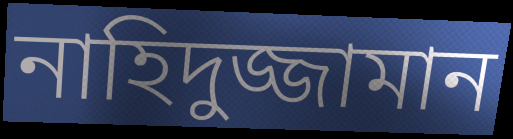
নাহিদুজ্জামান